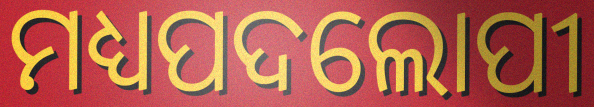
ମଧ୍ଯପଦଲୋପୀ